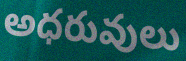
అధరువులు